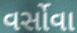
વર્સોવા